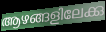
ആഴങ്ങളിലേക്കു